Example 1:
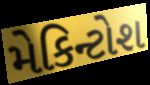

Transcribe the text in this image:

મેકિન્ટોશ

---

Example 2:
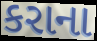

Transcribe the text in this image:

કરાના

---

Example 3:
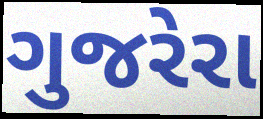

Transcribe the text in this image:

ગુજરેરા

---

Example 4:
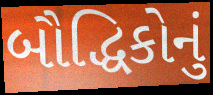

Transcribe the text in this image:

બૌદ્ધિકોનું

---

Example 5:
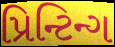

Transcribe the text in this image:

પ્રિન્ટિન્ગ